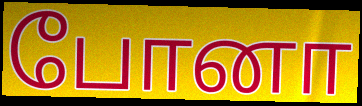
போனா